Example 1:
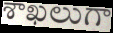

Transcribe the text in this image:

శాఖలుగా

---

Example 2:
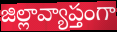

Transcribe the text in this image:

జిల్లావ్యాప్తంగా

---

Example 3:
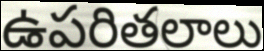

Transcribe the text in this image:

ఉపరితలాలు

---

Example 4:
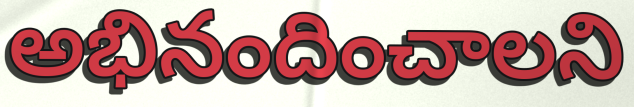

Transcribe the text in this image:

అభినందించాలని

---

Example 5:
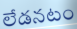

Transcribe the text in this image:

లేడనటం